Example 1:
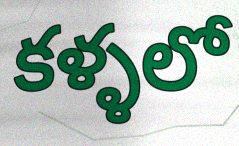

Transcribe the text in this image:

కళ్ళలో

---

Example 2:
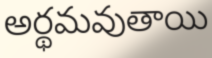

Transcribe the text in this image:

అర్థమవుతాయి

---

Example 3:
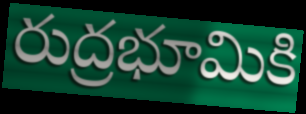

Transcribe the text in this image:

రుద్రభూమికి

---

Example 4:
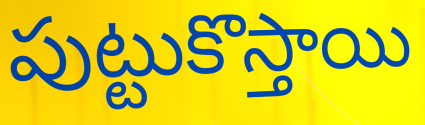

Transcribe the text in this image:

పుట్టుకొస్తాయి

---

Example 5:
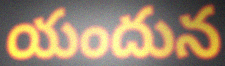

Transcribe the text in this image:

యందున